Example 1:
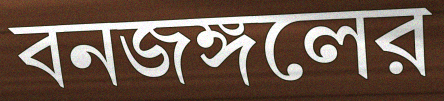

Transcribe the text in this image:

বনজঙ্গলের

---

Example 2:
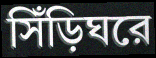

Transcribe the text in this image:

সিঁড়িঘরে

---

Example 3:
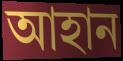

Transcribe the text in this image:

আহান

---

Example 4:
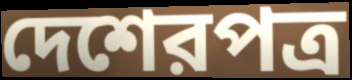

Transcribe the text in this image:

দেশেরপত্র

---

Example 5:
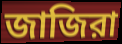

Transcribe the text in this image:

জাজিরা